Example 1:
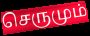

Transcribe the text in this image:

செருமும்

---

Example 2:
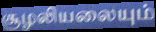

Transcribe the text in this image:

சூழலியலையும்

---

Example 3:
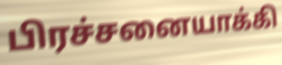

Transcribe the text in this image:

பிரச்சனையாக்கி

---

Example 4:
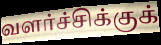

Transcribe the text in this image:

வளர்ச்சிக்குக்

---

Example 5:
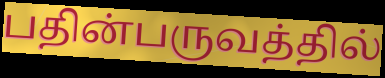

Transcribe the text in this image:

பதின்பருவத்தில்